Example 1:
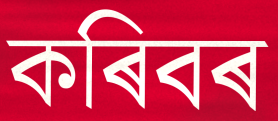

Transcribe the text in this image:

কৰিবৰ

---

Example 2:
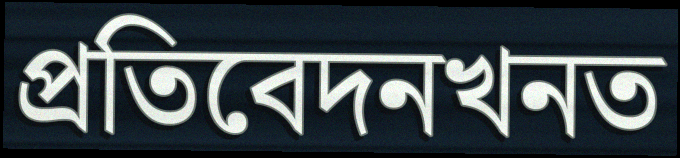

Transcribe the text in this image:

প্ৰতিবেদনখনত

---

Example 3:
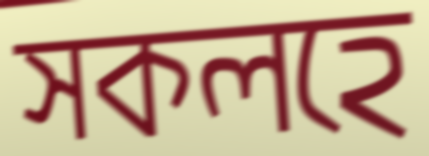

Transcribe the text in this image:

সকলহে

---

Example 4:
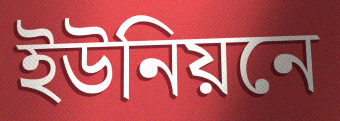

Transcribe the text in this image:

ইউনিয়নে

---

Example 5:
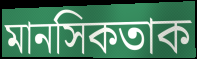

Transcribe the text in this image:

মানসিকতাক